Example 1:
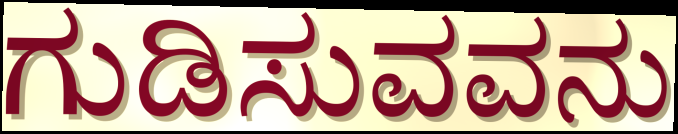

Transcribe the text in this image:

ಗುಡಿಸುವವನು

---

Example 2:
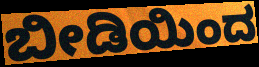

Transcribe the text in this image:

ಬೀಡಿಯಿಂದ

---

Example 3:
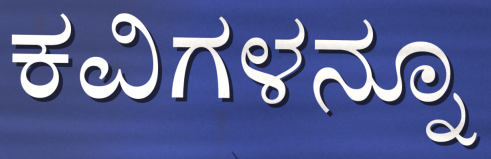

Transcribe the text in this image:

ಕವಿಗಳನ್ನೂ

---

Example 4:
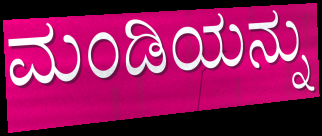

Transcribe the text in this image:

ಮಂಡಿಯನ್ನು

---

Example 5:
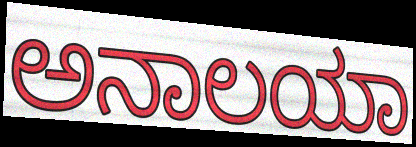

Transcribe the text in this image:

ಅನಾಲಯಾ